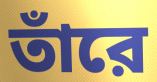
তাঁরে